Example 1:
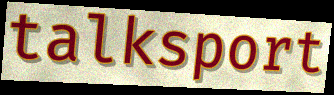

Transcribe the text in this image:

talksport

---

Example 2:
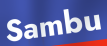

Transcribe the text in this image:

Sambu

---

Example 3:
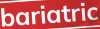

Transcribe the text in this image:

bariatric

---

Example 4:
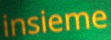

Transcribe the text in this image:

insieme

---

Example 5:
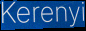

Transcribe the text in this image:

Kerenyi